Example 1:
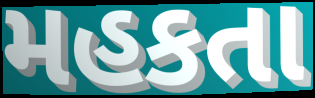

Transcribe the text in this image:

મહકતા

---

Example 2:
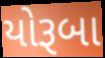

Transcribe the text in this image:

યોરૂબા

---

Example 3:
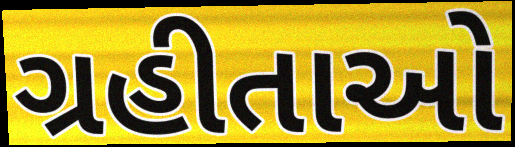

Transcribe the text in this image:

ગ્રહીતાઓ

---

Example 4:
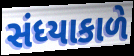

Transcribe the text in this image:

સંધ્યાકાળે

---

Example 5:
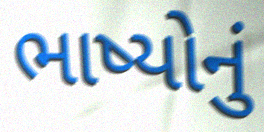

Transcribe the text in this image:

ભાષ્યોનું